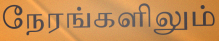
நேரங்களிலும்